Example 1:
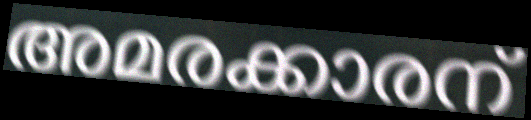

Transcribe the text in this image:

അമരക്കാരന്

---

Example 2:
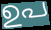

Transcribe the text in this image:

ഉപ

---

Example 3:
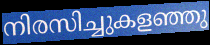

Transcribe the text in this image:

നിരസിച്ചുകളഞ്ഞു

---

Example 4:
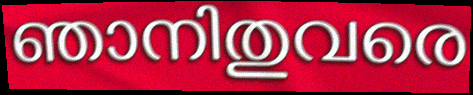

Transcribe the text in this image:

ഞാനിതുവരെ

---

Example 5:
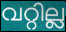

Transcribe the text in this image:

വറ്റില്ല